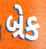
બ્રેક